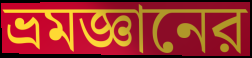
ভ্রমজ্ঞানের